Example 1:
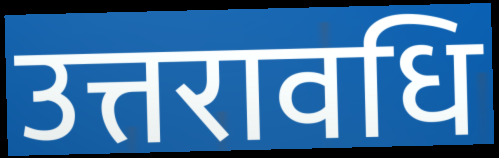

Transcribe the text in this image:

उत्तरावधि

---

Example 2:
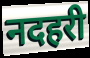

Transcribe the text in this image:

नदहरी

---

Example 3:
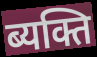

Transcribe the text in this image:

ब्यक्ति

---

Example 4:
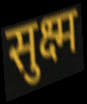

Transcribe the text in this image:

सुक्ष्म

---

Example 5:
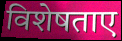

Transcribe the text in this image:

विशेषताए